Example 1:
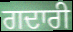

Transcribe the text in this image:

ਗਦਾਰੀ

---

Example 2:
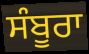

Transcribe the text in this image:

ਸੰਬੂਰਾ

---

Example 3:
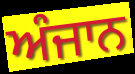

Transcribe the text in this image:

ਅੰਜਾਨ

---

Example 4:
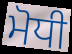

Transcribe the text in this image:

ਮੋਧੀ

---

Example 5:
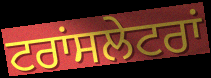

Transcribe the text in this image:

ਟਰਾਂਸਲੇਟਰਾਂ